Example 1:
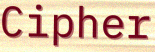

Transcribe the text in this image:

Cipher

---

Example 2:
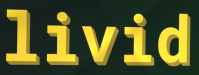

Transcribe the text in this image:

livid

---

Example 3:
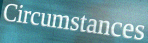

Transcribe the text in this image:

Circumstances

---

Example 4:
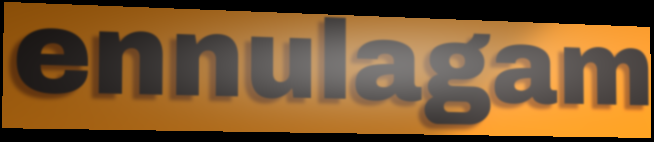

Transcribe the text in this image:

ennulagam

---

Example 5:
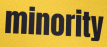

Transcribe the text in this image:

minority